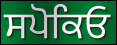
ਸਪੋਕਿਓ